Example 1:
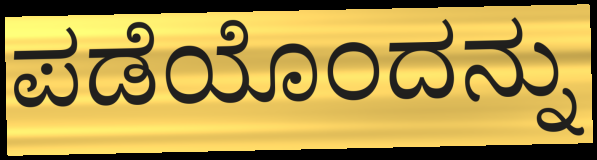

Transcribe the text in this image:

ಪಡೆಯೊಂದನ್ನು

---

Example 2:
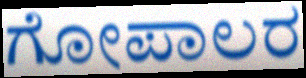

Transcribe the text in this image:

ಗೋಪಾಲರ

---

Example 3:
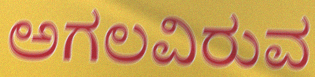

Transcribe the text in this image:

ಅಗಲವಿರುವ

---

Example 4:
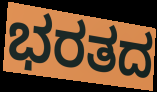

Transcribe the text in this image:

ಭರತದ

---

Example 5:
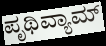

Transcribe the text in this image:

ಪೃಥಿವ್ಯಾಮ್